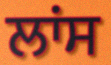
ਲਾਂਸ